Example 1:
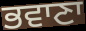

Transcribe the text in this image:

ਭਵਾਣਾ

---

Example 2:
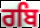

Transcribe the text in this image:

ਰਬਿ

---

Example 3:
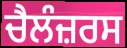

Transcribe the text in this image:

ਚੈਲੰਜ਼ਰਸ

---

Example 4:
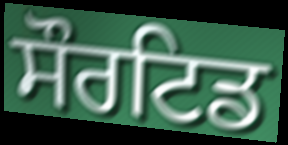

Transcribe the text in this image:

ਸੌਰਟਿਡ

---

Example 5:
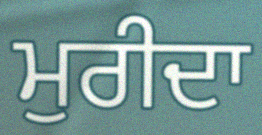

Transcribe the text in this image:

ਮੁਰੀਦਾ